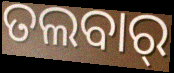
ତଲବାର୍